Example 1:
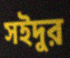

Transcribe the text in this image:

সইদুর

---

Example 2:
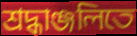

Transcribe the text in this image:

শ্রদ্ধাঞ্জলিতে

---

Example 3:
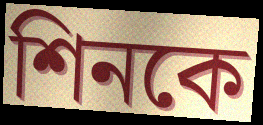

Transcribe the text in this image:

শিনকে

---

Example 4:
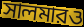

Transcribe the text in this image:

সালমারও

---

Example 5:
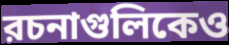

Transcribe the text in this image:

রচনাগুলিকেও